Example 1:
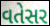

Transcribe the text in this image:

વતેસર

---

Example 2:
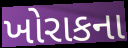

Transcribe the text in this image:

ખોરાકના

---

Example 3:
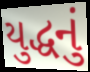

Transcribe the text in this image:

યુદ્ધનું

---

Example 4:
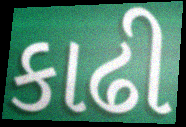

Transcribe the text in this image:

કાઢી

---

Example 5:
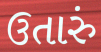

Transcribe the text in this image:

ઉતારું